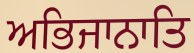
ਅਭਿਜਾਨਾਤਿ